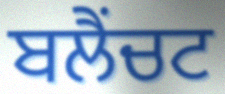
ਬਲੈਂਚਟ